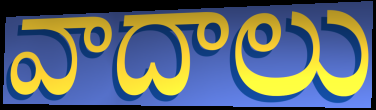
వాదాలు